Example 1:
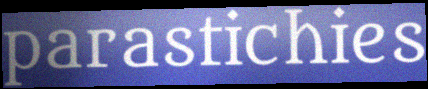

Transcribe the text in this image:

parastichies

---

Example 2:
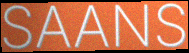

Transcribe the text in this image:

SAANS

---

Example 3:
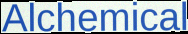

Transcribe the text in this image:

Alchemical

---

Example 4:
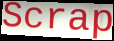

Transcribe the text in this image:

Scrap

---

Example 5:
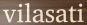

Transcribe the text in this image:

vilasati